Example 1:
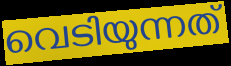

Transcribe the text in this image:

വെടിയുന്നത്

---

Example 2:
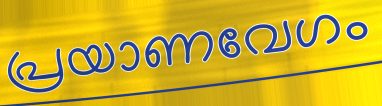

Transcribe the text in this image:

പ്രയാണവേഗം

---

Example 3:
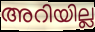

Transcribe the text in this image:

അറിയില്ല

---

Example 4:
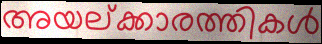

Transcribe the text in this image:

അയല്ക്കാരത്തികൾ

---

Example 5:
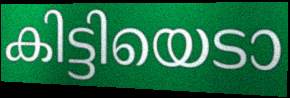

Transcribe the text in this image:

കിട്ടിയെടാ